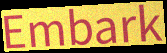
Embark